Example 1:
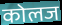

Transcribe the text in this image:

कोलज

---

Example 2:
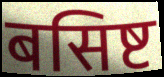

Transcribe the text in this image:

बसिष्ट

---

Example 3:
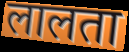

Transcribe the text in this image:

लालता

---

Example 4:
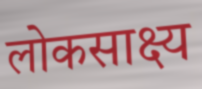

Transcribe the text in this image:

लोकसाक्ष्य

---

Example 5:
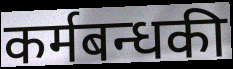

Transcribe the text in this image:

कर्मबन्धकी